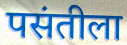
पसंतीला